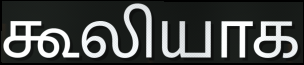
கூலியாக